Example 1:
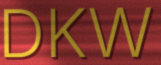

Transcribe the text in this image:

DKW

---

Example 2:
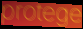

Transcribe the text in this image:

protege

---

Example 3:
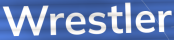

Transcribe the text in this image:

Wrestler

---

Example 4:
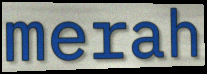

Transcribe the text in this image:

merah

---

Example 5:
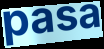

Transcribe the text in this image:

pasa